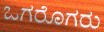
ಒಗರೊಗರು